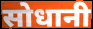
सोधानी